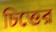
চিত্তের